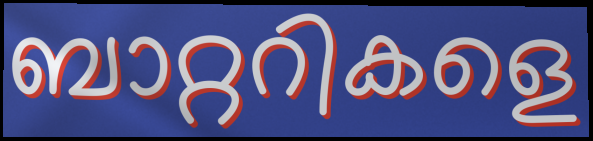
ബാറ്ററികളെ